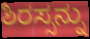
ಶಿರಸ್ಸನ್ನು